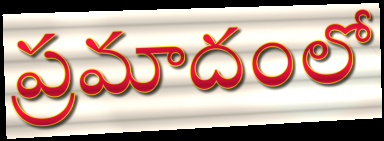
ప్రమాదంలో